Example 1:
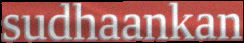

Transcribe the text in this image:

sudhaankan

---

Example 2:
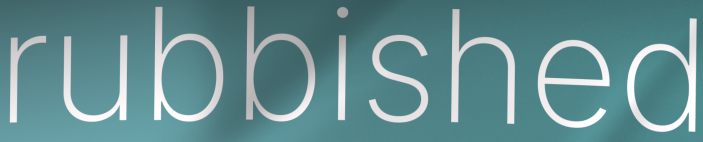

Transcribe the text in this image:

rubbished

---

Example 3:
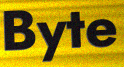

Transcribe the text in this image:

Byte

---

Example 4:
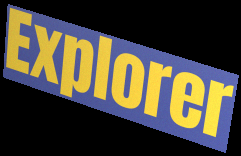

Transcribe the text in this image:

Explorer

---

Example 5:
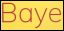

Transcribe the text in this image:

Baye